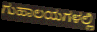
ಗುಹಾಲಯಗಳಲ್ಲಿ